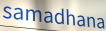
samadhana